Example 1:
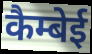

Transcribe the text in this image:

कैम्बेई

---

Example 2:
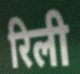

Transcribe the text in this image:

रिली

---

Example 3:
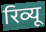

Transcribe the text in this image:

रिव्यू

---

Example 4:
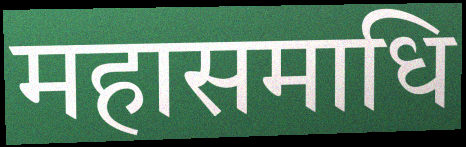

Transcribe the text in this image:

महासमाधि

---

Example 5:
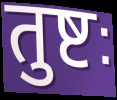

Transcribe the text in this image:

तुष्टः